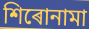
শিৰোনামা